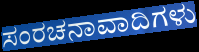
ಸಂರಚನಾವಾದಿಗಳು